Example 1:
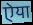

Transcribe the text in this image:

ऐया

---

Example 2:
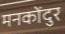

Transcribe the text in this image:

मनकोंदुर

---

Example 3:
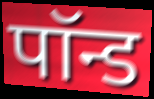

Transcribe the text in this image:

पॉन्ड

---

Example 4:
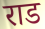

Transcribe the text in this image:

राड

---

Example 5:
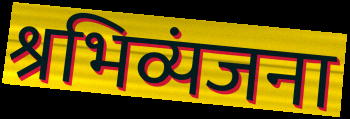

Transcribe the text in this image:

श्रभिव्यंजना